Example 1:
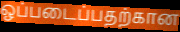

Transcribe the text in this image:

ஒப்படைப்பதற்கான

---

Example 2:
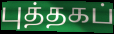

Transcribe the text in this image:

புத்தகப்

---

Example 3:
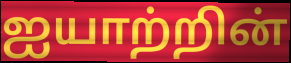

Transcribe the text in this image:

ஐயாற்றின்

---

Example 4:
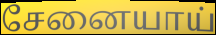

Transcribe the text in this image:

சேனையாய்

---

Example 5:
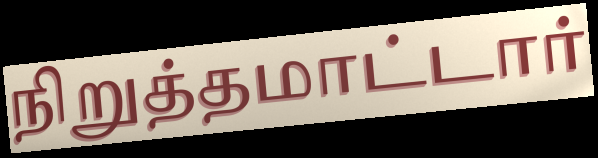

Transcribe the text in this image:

நிறுத்தமாட்டார்